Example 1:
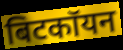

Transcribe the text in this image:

बिटकॉयन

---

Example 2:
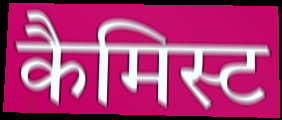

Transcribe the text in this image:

कैमिस्ट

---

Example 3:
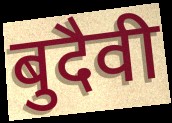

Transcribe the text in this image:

बुदैवी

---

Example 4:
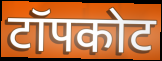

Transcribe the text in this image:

टॉपकोट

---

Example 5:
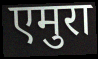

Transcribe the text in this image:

एमुरा